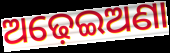
ଅଢ଼େଇଅଣା